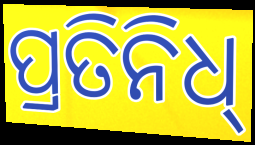
ପ୍ରତିନିଧ୍